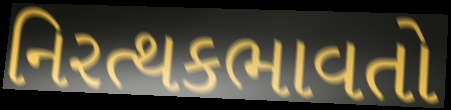
નિરત્થકભાવતો